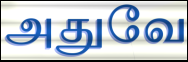
அதுவே